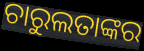
ଚାରୁଲତାଙ୍କର